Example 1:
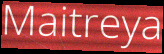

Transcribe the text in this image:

Maitreya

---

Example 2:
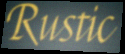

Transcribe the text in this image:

Rustic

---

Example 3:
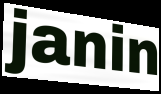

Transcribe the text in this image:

janin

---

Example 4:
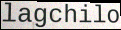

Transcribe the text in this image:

lagchilo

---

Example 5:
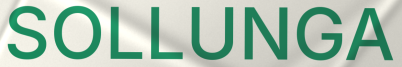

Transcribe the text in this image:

SOLLUNGA